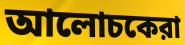
আলোচকেরা